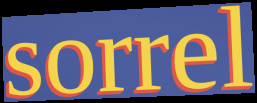
sorrel